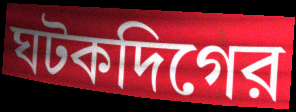
ঘটকদিগের